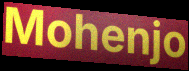
Mohenjo